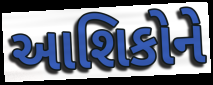
આશિકોને